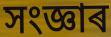
সংজ্ঞাৰ